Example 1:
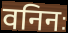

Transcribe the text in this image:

वनिनः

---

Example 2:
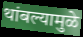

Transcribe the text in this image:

थांबल्यामुळे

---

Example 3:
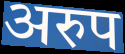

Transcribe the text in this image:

अरुप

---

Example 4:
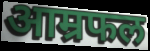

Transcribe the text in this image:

आम्रफल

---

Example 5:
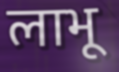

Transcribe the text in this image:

लाभू